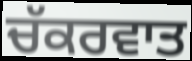
ਚੱਕਰਵਾਤ